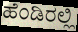
ಹೆಂಡಿರಲ್ಲಿ